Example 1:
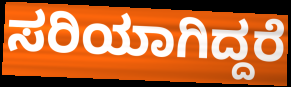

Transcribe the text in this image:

ಸರಿಯಾಗಿದ್ದರೆ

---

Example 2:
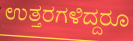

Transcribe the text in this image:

ಉತ್ತರಗಳಿದ್ದರೂ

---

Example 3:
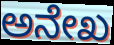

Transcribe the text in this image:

ಅನೇಖ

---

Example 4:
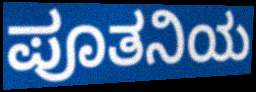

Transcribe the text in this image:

ಪೂತನಿಯ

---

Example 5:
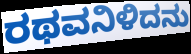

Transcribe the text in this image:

ರಥವನಿಳಿದನು